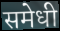
समेधी